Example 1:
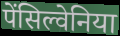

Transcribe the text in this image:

पेंसिल्वेनिया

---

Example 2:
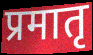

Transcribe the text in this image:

प्रमातृ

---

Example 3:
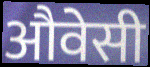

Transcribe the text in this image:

औवेसी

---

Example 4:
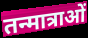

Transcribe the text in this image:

तन्मात्राओं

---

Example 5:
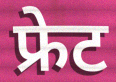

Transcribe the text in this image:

फ्रेट